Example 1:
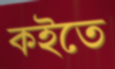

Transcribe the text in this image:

কইতে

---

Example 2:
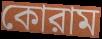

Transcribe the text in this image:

কোরাম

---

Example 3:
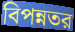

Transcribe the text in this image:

বিপন্নতর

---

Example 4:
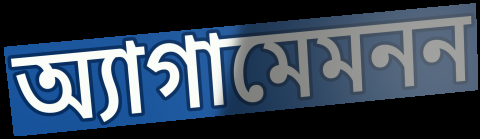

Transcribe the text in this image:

অ্যাগামেমনন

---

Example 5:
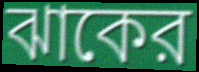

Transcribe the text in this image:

ঝাকের